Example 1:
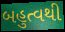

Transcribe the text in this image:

બહુત્વથી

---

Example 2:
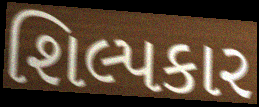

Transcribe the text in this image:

શિલ્પકાર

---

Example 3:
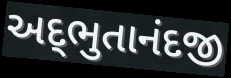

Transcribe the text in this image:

અદ્‌ભુતાનંદજી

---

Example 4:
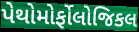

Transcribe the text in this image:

પેથોમોર્ફોલોજિકલ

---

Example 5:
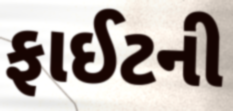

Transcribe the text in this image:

ફાઈટની